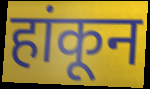
हांकून